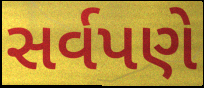
સર્વપણે